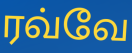
ரவ்வே